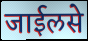
जाईलसे